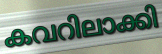
കവറിലാക്കി